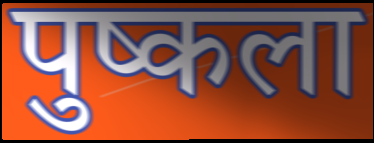
पुष्कला